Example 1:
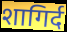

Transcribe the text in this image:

शागिर्द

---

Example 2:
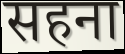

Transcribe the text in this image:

सहना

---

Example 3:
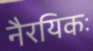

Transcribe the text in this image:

नैरयिकः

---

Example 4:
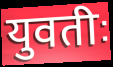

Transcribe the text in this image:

युवतीः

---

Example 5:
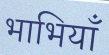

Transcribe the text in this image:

भाभियाँ